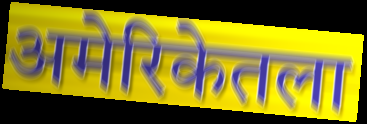
अमेरिकेतला